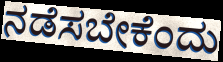
ನಡೆಸಬೇಕೆಂದು